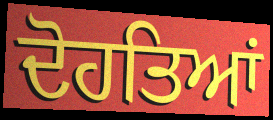
ਦੋਹਤਿਆਂ